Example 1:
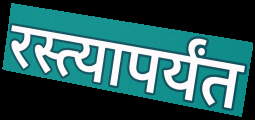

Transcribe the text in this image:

रस्त्यापर्यंत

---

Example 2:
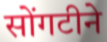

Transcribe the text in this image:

सोंगटीने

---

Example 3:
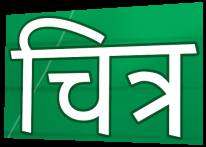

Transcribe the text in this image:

चित्र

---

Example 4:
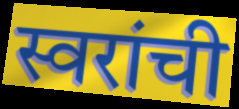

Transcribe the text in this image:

स्वरांची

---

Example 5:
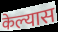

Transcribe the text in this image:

केल्यास